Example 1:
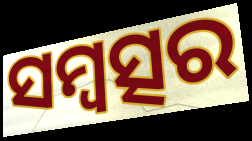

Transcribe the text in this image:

ସମ୍ବତ୍ସର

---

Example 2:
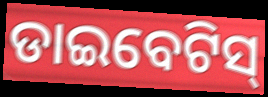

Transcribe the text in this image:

ଡାଇବେଟିସ୍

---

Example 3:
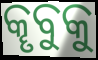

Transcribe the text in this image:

କୄବୁକୁ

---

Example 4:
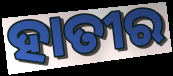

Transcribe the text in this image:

ହାତୀର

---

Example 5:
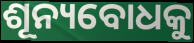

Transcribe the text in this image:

ଶୂନ୍ୟବୋଧକୁ